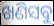
ଖଣିସବୁ